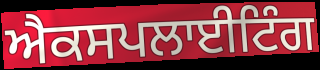
ਐਕਸਪਲਾਈਟਿੰਗ